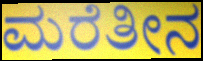
ಮರೆತೀನ